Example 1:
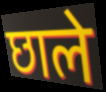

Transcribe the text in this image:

छाले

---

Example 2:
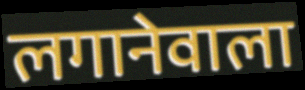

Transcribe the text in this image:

लगानेवाला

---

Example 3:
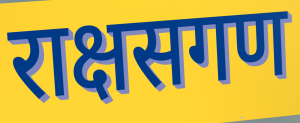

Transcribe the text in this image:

राक्षसगण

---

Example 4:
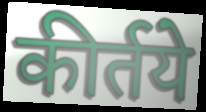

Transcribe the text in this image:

कीर्तये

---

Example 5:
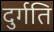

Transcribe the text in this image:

दुर्गति